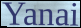
Yanai